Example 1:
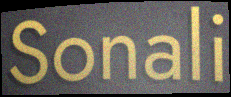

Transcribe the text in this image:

Sonali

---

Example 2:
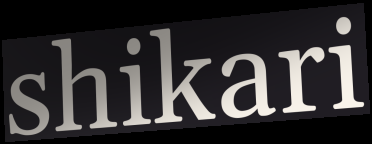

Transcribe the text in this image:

shikari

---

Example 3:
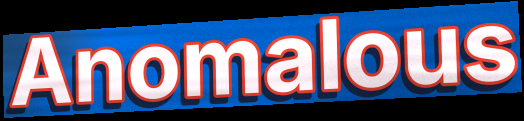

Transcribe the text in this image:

Anomalous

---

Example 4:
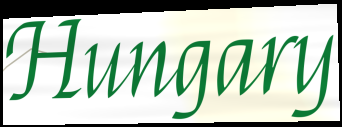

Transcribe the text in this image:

Hungary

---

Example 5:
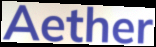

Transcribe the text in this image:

Aether